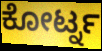
ಕೋರ್ಟ್ನ